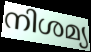
നിശമ്യ